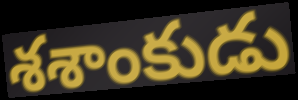
శశాంకుడు